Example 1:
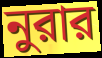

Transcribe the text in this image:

নুরার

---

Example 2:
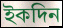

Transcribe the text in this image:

ইকদিন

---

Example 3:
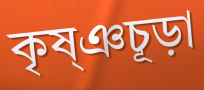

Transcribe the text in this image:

কৃষ্ঞচূড়া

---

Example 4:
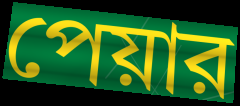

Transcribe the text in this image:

পেয়ার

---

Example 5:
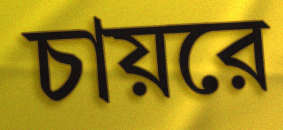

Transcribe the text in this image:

চায়রে